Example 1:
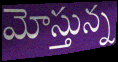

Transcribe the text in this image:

మోస్తున్న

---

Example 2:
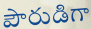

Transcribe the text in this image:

పౌరుడిగా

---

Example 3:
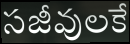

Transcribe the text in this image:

సజీవులకే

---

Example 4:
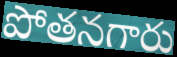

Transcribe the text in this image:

పోతనగారు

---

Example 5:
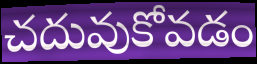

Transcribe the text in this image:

చదువుకోవడం